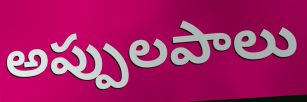
అప్పులపాలు